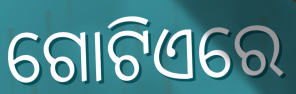
ଗୋଟିଏରେ